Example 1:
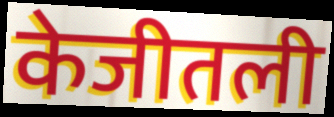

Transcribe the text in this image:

केजीतली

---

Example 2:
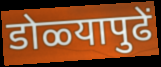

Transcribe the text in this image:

डोळ्यापुढें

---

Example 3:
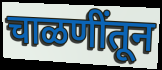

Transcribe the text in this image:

चाळणींतून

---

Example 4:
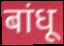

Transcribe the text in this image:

बांधू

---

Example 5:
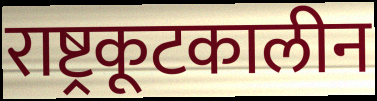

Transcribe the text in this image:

राष्ट्रकूटकालीन